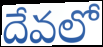
దేవలో